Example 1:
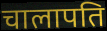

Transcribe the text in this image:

चालापति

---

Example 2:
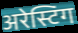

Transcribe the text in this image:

अरेस्टिंग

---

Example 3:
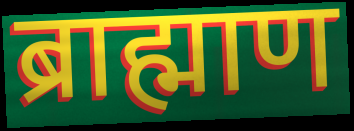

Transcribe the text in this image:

ब्राह्माण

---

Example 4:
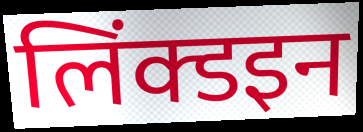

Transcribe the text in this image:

लिंक्‍डइन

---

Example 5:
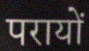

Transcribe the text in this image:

परायों